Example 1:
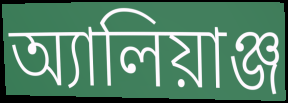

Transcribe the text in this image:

অ্যালিয়াঞ্জ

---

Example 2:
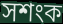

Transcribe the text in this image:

সশংক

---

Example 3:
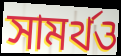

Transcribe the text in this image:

সামর্থও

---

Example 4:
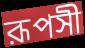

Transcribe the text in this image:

রূপসী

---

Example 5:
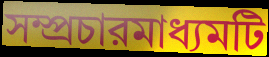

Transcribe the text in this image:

সম্প্রচারমাধ্যমটি